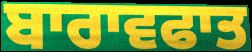
ਬਾਰਾਵਫਾਤ